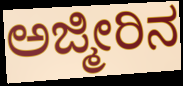
ಅಜ್ಮೀರಿನ